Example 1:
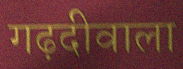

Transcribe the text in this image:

गढ़दीवाला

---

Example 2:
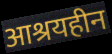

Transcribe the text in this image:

आश्रयहीन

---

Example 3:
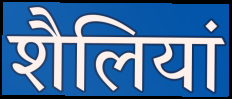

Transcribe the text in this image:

शैलियां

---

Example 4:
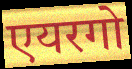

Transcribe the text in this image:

एयरगो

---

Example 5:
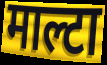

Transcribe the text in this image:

माल्टा